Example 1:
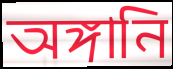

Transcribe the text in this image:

অঙ্গানি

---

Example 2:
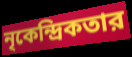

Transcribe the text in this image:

নৃকেন্দ্রিকতার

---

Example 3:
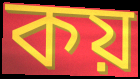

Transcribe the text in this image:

কয়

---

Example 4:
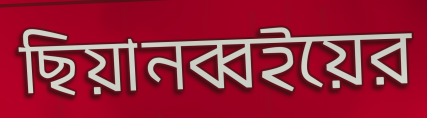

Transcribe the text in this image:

ছিয়ানব্বইয়ের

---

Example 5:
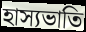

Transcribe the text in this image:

হাস্যভাতি